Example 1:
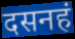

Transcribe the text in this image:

दसनहं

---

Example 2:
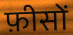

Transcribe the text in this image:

फ़ीसों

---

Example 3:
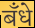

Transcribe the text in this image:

बँधे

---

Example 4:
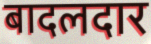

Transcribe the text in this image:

बादलदार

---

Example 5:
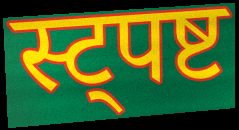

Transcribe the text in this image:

स्ट्पष्ट